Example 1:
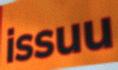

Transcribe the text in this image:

issuu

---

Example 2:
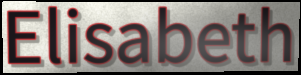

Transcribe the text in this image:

Elisabeth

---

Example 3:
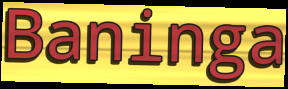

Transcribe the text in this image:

Baninga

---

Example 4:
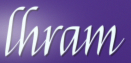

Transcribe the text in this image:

lhram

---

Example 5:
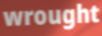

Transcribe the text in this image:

wrought